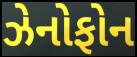
ઝેનોફોન